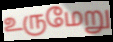
உருமேறு